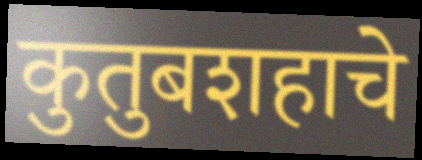
कुतुबशहाचे